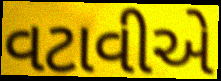
વટાવીએ